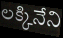
లక్కినేని